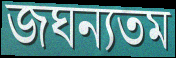
জঘন্যতম